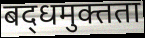
बद्धमुक्तता